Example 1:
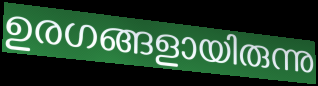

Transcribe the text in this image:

ഉരഗങ്ങളായിരുന്നു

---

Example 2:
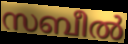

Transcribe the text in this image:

സബീൽ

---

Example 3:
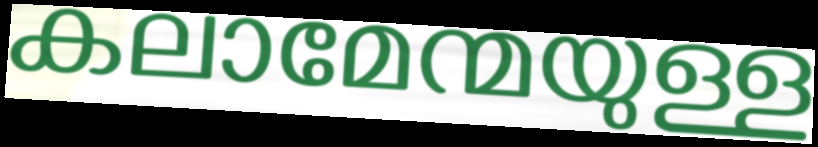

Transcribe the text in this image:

കലാമേന്മയുള്ള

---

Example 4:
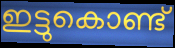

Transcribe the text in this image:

ഇട്ടുകൊണ്ട്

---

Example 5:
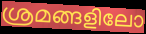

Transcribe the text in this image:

ശ്രമങ്ങളിലോ